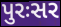
પુરઃસર